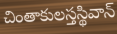
చింతాకులస్తస్థివాన్